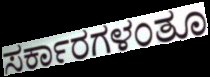
ಸರ್ಕಾರಗಳಂತೂ